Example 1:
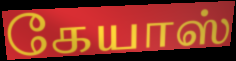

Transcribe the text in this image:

கேயாஸ்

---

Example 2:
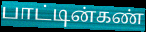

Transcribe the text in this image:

பாட்டின்கண்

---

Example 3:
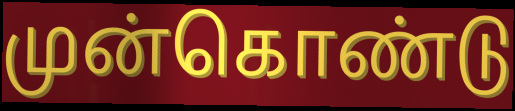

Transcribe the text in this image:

முன்கொண்டு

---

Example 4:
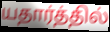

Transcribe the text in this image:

யதார்த்தில்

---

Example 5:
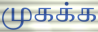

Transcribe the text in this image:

முகக்க